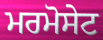
ਮਰਮੋਸੇਟ